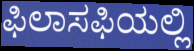
ಫಿಲಾಸಫಿಯಲ್ಲಿ